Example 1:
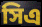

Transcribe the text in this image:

সিএ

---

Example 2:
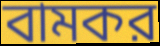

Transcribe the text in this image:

বামকর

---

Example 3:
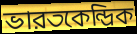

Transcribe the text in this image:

ভারতকেন্দ্রিক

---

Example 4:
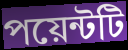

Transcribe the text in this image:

পয়েন্টটি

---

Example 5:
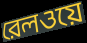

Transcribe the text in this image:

রেলওয়ে